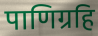
पाणिग्रहि